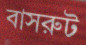
বাসরুট